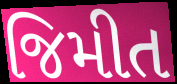
જિમીત